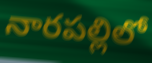
నారపల్లిలో